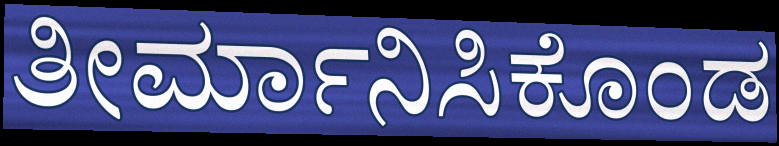
ತೀರ್ಮಾನಿಸಿಕೊಂಡ